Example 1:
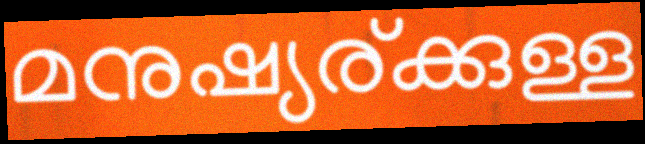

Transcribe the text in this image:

മനുഷ്യര്ക്കുള്ള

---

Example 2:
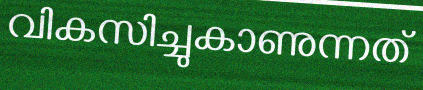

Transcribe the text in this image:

വികസിച്ചുകാണുന്നത്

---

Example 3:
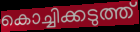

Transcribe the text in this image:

കൊച്ചിക്കടുത്ത്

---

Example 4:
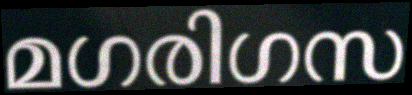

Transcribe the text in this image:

മഗരിഗസ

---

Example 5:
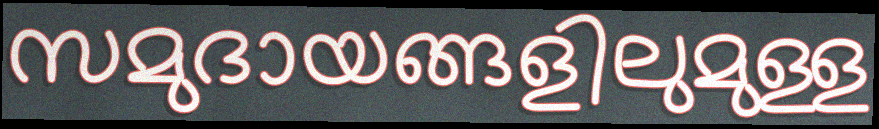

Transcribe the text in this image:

സമുദായങ്ങളിലുമുള്ള